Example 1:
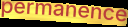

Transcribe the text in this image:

permanence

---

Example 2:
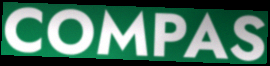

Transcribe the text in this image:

COMPAS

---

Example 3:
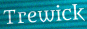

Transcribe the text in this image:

Trewick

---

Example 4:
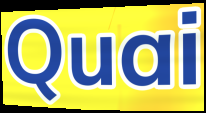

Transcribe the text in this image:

Quai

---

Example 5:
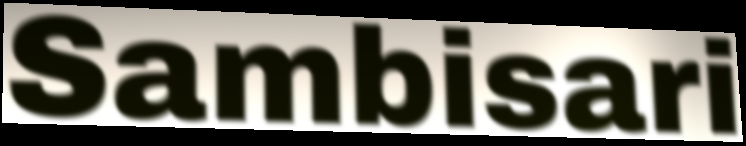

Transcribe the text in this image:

Sambisari